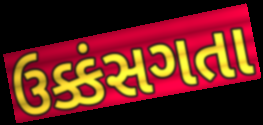
ઉક્કંસગતા